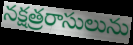
నక్షత్రరాసులును